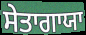
ਸੇਤਾਗਾਯਾ